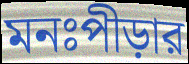
মনঃপীড়ার